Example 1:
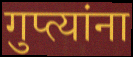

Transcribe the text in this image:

गुप्त्यांना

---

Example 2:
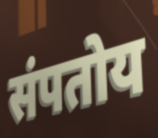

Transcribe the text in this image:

संपतोय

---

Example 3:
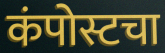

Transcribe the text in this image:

कंपोस्टचा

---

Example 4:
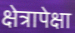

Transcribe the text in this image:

क्षेत्रापेक्षा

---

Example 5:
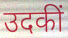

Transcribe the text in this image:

उदकीं